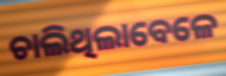
ଚାଲିଥିଲାବେଳେ